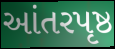
આંતરપૃષ્ઠ